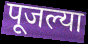
पूजल्या